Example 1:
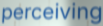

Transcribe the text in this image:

perceiving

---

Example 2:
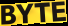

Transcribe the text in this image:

BYTE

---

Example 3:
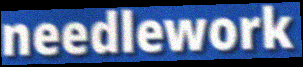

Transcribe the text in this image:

needlework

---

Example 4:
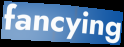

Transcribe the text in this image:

fancying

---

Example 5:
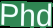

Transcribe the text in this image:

Phd